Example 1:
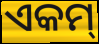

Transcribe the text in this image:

ଏକମ୍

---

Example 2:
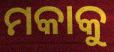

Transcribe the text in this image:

ମକାକୁ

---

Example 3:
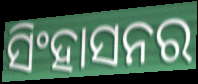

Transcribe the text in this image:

ସିଂହାସନର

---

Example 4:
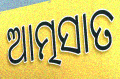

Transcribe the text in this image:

ଆତ୍ମସାତ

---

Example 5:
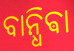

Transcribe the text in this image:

ବାନ୍ଧିଵା